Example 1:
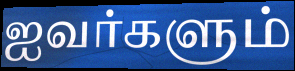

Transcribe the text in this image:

ஐவர்களும்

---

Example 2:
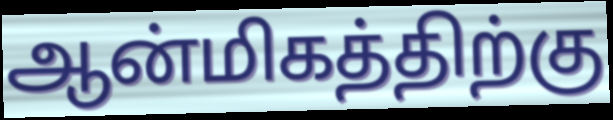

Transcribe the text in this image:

ஆன்மிகத்திற்கு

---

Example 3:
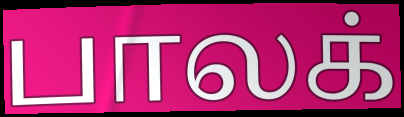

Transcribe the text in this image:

பாலக்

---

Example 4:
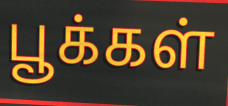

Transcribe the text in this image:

பூக்கள்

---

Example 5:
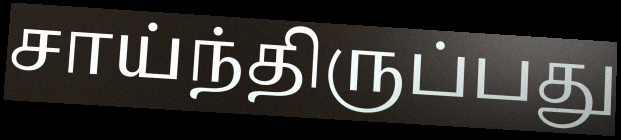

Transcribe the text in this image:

சாய்ந்திருப்பது